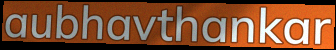
aubhavthankar